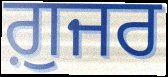
ਗ਼ੁਜਰ